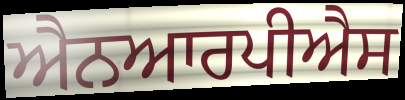
ਐਨਆਰਪੀਐਸ